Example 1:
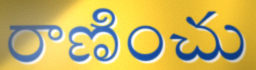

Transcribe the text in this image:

రాణించు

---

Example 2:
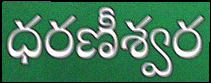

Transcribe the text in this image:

ధరణీశ్వర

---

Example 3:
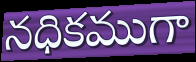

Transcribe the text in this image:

నధికముగా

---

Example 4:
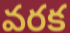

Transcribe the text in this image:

వరక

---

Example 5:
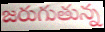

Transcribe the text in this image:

జరుగుతున్న